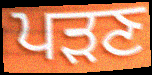
ਪੜਣ